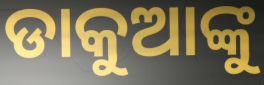
ଡାକୁଆଙ୍କୁ